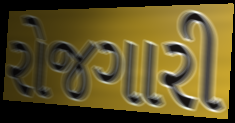
રોજગારી